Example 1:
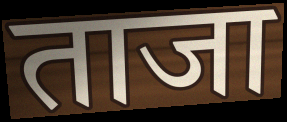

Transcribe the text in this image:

ताजा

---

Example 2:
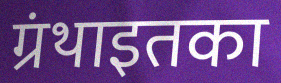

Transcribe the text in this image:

ग्रंथाइतका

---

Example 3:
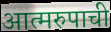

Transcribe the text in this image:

आत्मरुपाची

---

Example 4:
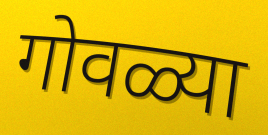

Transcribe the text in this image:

गोवळ्या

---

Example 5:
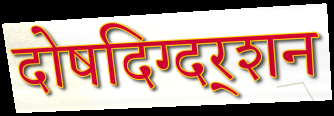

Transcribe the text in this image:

दोषदिग्दर्शन